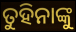
ତୁହିନାଙ୍କୁ